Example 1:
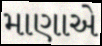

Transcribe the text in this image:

માણાએ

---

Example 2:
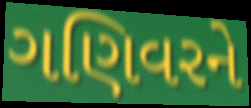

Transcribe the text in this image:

ગણિવરને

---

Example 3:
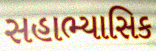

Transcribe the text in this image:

સહાભ્યાસિક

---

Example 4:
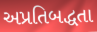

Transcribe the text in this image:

અપ્રતિબદ્ધતા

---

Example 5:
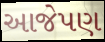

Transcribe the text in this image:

આજેપણ